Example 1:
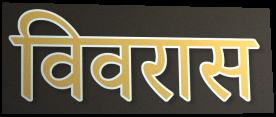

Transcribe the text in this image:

विवरास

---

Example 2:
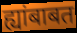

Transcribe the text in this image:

ह्यांबाबत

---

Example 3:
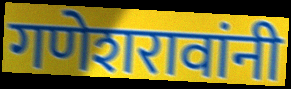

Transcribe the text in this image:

गणेशरावांनी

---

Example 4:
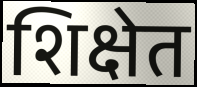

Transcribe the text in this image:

शिक्षेत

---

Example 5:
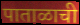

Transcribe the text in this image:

पाताळाची